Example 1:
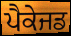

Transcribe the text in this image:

ਪੈਕੇਜਡ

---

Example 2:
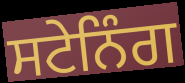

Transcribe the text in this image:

ਸਟੇਨਿੰਗ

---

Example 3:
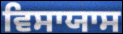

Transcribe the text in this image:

ਵਿਸਾਯਾਸ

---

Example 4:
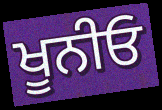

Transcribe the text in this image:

ਖੂਨੀਓ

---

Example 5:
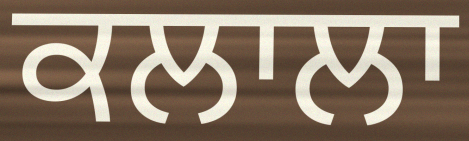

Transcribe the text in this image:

ਕਲਾਲਾ